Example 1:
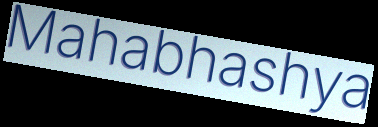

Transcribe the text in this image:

Mahabhashya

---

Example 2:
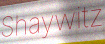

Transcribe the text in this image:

Shaywitz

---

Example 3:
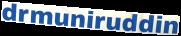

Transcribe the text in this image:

drmuniruddin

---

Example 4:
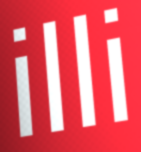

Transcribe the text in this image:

illi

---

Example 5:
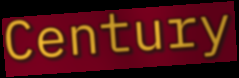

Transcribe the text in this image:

Century